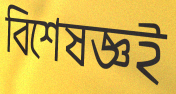
বিশেষজ্ঞই